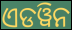
ଏଡୱିନ